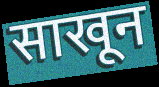
साखून